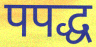
पपद्ध